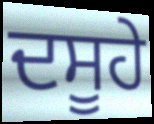
ਦਸੂਹੇ